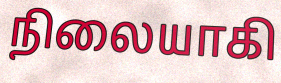
நிலையாகி